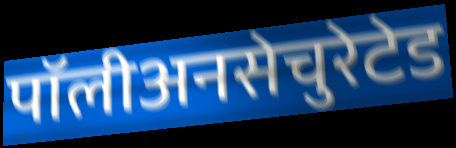
पॉलीअनसेचुरेटेड